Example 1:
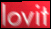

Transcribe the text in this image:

lovit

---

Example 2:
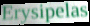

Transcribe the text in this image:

Erysipelas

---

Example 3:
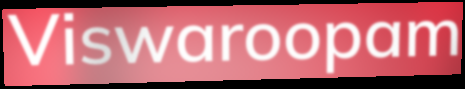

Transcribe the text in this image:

Viswaroopam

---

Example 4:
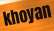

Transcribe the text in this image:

khoyan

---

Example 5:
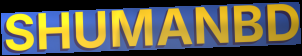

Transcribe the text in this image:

SHUMANBD